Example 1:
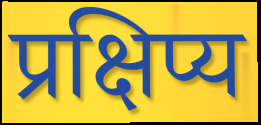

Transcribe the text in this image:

प्रक्षिप्य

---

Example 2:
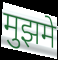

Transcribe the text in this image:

मुझमे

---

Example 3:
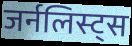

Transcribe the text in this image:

जर्नलिस्ट्स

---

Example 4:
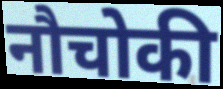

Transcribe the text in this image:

नौचोकी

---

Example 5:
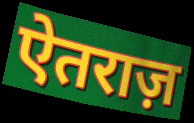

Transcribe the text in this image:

ऐतराज़